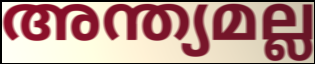
അന്ത്യമല്ല